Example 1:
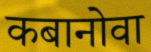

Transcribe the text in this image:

कबानोवा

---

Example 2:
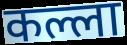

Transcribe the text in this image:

कल्ला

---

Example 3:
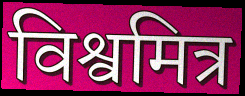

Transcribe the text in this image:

विश्वमित्र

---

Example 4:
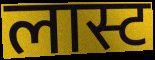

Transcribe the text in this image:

लास्ट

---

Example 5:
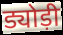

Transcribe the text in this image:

ड्योड़ी